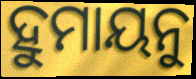
ହୁମାୟନୁ